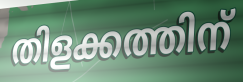
തിളക്കത്തിന്